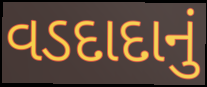
વડદાદાનું